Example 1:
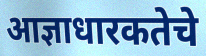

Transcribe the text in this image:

आज्ञाधारकतेचे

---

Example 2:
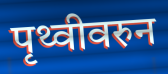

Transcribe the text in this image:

पृथ्वीवरुन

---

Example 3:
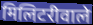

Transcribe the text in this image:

मिलिटरीवाले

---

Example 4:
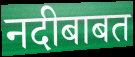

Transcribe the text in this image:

नदीबाबत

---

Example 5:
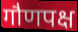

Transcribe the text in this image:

गौणपक्ष